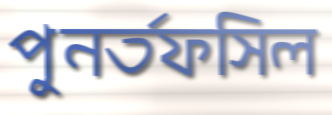
পুনর্তফসিল